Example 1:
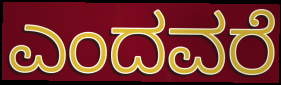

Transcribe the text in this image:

ಎಂದವರೆ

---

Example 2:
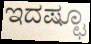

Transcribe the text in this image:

ಇದಷ್ಟೂ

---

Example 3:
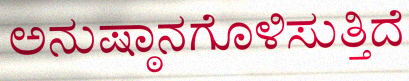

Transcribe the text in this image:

ಅನುಷ್ಠಾನಗೊಳಿಸುತ್ತಿದೆ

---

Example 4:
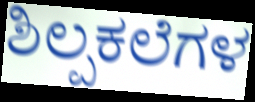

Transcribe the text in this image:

ಶಿಲ್ಪಕಲೆಗಳ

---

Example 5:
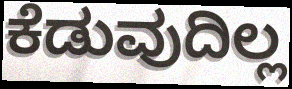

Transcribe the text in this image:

ಕೆಡುವುದಿಲ್ಲ